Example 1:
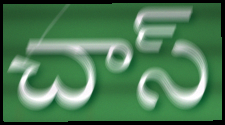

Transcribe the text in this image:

చాస్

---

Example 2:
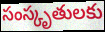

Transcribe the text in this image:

సంస్కృతులకు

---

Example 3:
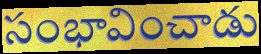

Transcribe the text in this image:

సంభావించాడు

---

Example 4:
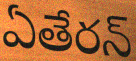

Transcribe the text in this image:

ఏతేరన్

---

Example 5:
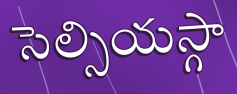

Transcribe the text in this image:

సెల్సియస్గా